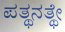
ಪತ್ಥನತ್ಥೇ